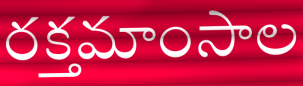
రక్తమాంసాల